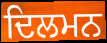
ਦਿਲਮਨ